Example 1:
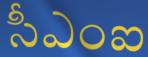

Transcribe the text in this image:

సీఎంఐ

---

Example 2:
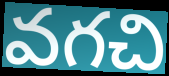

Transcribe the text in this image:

వగచి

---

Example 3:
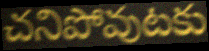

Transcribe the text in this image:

చనిపోవుటకు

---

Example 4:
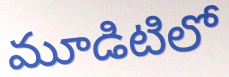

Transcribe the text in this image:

మూడిటిలో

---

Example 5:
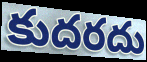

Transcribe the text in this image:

కుదరదు